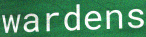
wardens